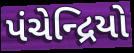
પંચેન્દ્રિયો